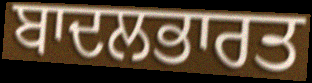
ਬਾਦਲਭਾਰਤ